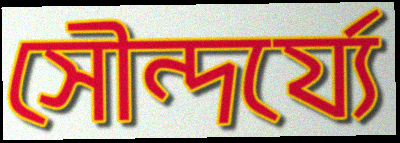
সৌন্দর্য্যে